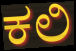
ಕಲಿ